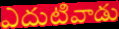
ఎదుటివాడు